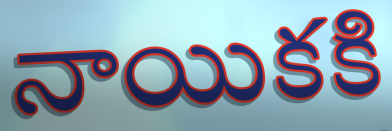
నాయికకి